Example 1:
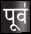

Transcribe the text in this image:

पूव॑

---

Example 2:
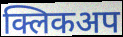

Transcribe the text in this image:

क्लिकअप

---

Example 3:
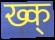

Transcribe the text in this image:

ख्क्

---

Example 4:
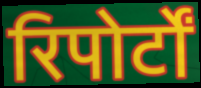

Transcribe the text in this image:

रिपोर्टों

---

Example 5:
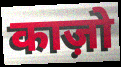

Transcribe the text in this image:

काज़ो